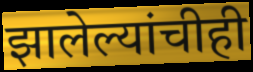
झालेल्यांचीही